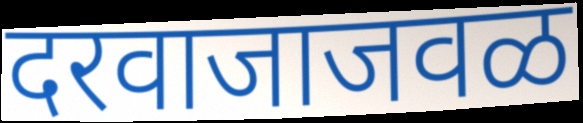
दरवाजाजवळ